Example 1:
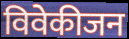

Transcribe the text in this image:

विवेकीजन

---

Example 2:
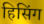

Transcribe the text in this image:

हिसिंग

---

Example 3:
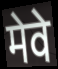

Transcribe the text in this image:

मेवे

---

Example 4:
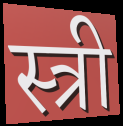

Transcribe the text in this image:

स्‍त्री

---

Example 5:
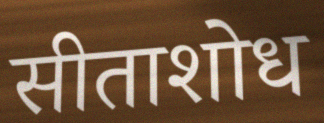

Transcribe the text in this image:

सीताशोध